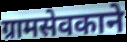
ग्रामसेवकाने